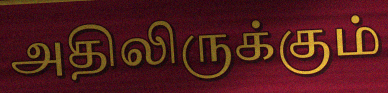
அதிலிருக்கும்